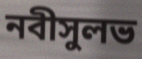
নবীসুলভ